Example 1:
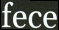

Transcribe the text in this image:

fece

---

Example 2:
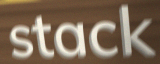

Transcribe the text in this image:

stack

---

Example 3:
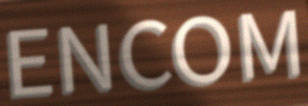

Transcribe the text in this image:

ENCOM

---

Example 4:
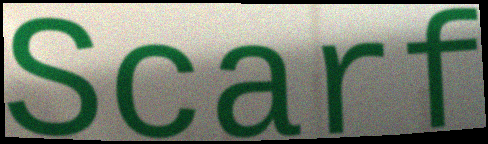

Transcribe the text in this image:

Scarf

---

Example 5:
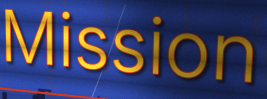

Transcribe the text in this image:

Mission